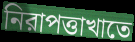
নিরাপত্তাখাতে